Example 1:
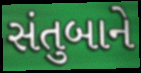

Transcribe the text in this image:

સંતુબાને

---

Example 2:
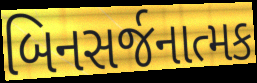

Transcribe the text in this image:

બિનસર્જનાત્મક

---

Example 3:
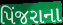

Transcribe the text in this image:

પિંજરાના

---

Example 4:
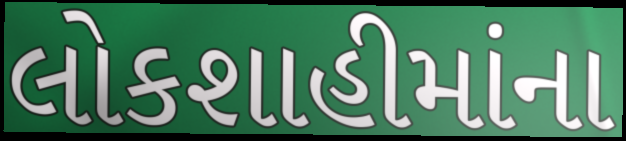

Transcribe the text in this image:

લોકશાહીમાંના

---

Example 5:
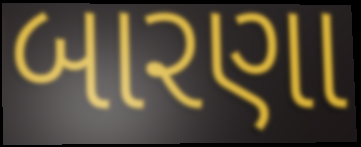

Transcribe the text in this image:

બારણા